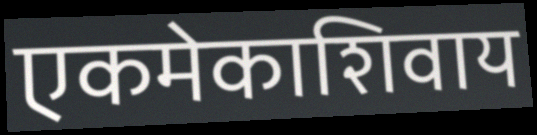
एकमेकाशिवाय